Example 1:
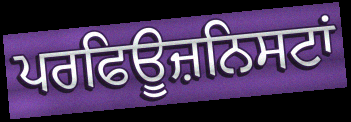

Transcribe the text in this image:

ਪਰਫਿਊਜ਼ਨਿਸਟਾਂ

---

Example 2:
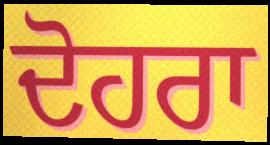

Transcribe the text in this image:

ਦੋਹਰਾ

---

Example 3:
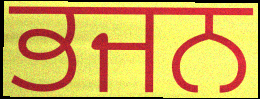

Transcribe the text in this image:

ਭਜਨ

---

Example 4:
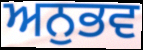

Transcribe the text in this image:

ਅਨੁਭਵ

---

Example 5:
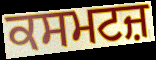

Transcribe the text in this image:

ਕਸਮਟਜ਼